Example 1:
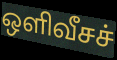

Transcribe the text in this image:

ஒளிவீசச்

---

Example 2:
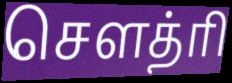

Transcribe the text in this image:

சௌத்ரி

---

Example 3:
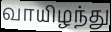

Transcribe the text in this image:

வாயிழந்து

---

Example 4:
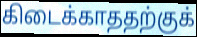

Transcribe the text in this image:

கிடைக்காததற்குக்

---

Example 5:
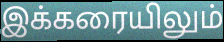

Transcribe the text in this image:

இக்கரையிலும்